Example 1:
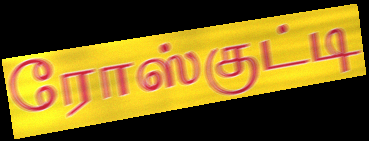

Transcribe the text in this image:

ரோஸ்குட்டி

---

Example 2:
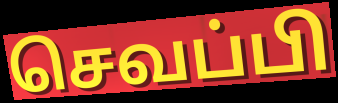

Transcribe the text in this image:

செவப்பி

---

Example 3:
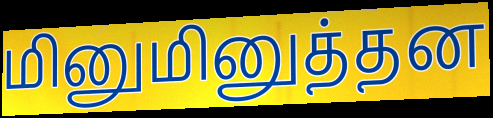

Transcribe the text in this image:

மினுமினுத்தன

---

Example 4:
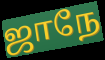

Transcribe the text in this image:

ஜாநே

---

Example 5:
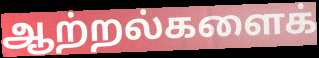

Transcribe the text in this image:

ஆற்றல்களைக்